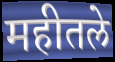
महीतले